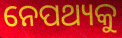
ନେପଥ୍ୟକୁ